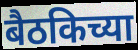
बैठकिच्या